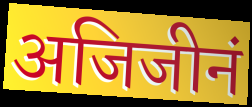
अजिजीनं